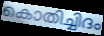
കൊതിച്ചിദം